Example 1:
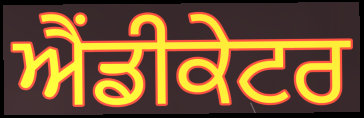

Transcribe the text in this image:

ਐਂਡੀਕੇਟਰ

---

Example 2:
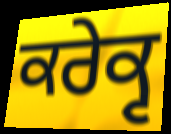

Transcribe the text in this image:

ਕਰੇਕ੍ਟ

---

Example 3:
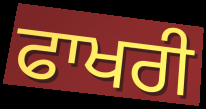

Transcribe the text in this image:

ਫਾਖਰੀ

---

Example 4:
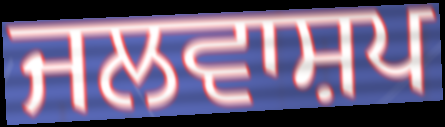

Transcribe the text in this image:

ਜਲਵਾਸ਼ਪ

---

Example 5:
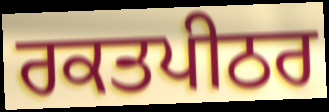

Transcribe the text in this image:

ਰਕਤਪੀਠਰ